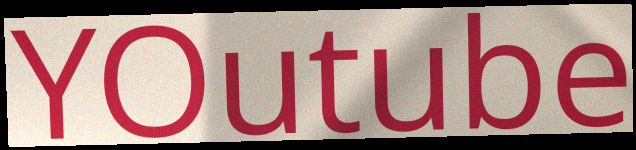
YOutube